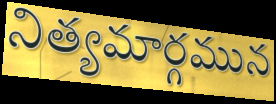
నిత్యమార్గమున